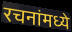
रचनांमध्ये